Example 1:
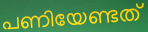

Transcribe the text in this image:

പണിയേണ്ടത്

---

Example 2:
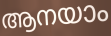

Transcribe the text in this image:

ആനയാം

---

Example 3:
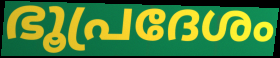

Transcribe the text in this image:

ഭൂപ്രദേശം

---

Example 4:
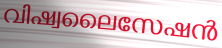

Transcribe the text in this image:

വിഷ്വലൈസേഷൻ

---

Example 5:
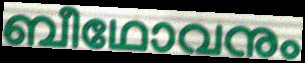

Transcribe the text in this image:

ബീഥോവനും